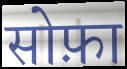
सोफ़ा